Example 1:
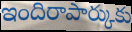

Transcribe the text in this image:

ఇందిరాపార్కుకు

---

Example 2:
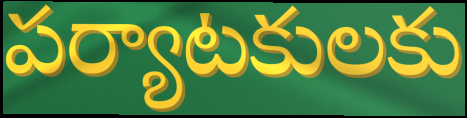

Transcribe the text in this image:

పర్యాటకులకు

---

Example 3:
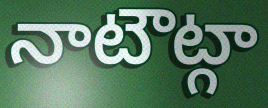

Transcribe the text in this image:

నాటౌట్గా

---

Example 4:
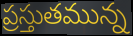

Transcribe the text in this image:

ప్రస్తుతమున్న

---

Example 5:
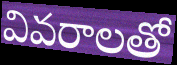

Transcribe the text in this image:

వివరాలతో